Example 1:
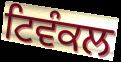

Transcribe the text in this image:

ਟਿਵੰਕਲ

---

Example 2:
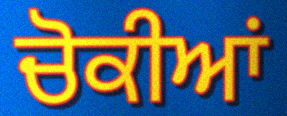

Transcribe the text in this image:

ਚੋਕੀਆਂ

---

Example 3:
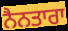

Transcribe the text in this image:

ਨੈਨਤਾਰਾ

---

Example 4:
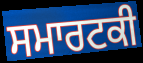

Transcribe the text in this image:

ਸਮਾਰਟਕੀ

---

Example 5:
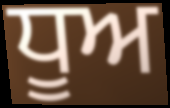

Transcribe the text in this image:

ਧੂਅ